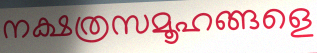
നക്ഷത്രസമൂഹങ്ങളെ